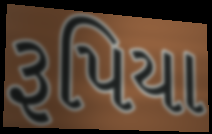
રૂપિયા